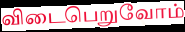
விடைபெறுவோம்